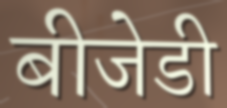
बीजेडी